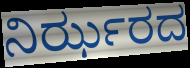
ನಿರ್ಝರದ